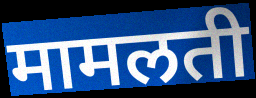
मामलती